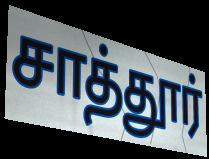
சாத்தூர்